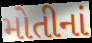
મોતીનાં